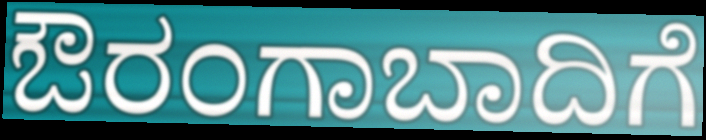
ಔರಂಗಾಬಾದಿಗೆ